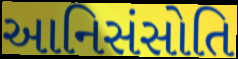
આનિસંસોતિ